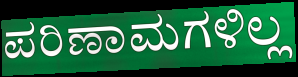
ಪರಿಣಾಮಗಳಿಲ್ಲ